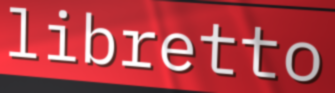
libretto